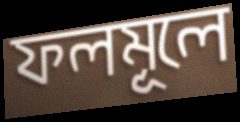
ফলমূলে